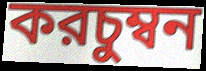
করচুম্বন